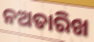
ନଅତାରିଖ